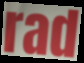
rad